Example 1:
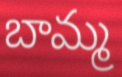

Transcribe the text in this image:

బామ్మ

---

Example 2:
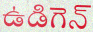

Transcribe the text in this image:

ఉడిగెన్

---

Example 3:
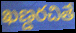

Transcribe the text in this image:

ఖణ్డరచితే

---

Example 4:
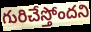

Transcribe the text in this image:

గురిచేస్తోందని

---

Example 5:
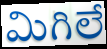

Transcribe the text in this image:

మిగిలే